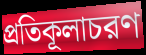
প্রতিকূলাচরণ